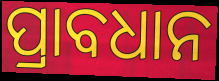
ପ୍ରାବଧାନ